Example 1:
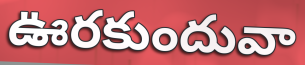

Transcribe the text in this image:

ఊరకుందువా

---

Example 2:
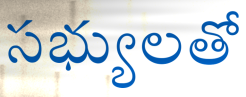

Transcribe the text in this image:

సభ్యులతో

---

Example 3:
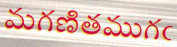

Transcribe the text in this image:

మగణితముగఁ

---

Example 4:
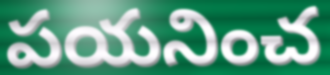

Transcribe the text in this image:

పయనించ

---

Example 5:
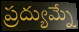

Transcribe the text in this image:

ప్రద్యుమ్నే